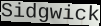
Sidgwick